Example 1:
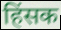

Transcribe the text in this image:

हिंसक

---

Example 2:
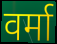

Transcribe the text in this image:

वर्मा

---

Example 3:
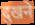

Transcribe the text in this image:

दुखने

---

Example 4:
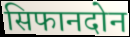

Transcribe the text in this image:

सिफानदोन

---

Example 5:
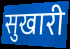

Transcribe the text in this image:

सुखारी